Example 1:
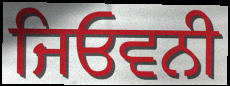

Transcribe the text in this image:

ਜਿਓਵਨੀ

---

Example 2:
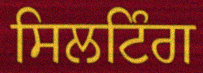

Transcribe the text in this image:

ਸਿਲਟਿੰਗ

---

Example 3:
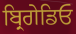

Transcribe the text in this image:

ਬ੍ਰਿਗੇਡਿਓ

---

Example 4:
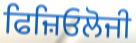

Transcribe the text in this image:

ਫਿਜ਼ਿਓਲੋਜੀ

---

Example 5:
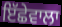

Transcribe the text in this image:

ਇੱਛੇਵਾਲਾ